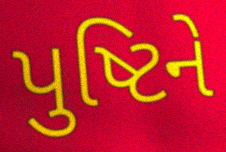
પુષ્ટિને